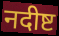
नदीष्ट